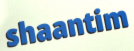
shaantim